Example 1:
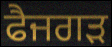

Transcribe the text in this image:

ਫੈਜਗੜ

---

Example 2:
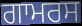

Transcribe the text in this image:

ਗਾਮਰਸ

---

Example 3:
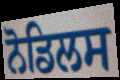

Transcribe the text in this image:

ਨੋਡਿਲਸ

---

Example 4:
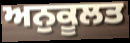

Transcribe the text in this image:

ਅਨੁਕੂਲਤ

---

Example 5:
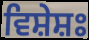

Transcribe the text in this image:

ਵਿਸ਼ੇਸ਼ਃ